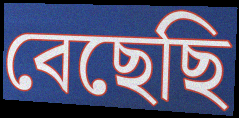
বেছেছি